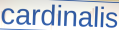
cardinalis